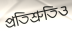
প্রতিশ্রুতিও